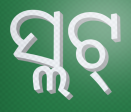
ସ୍ଲଟ୍